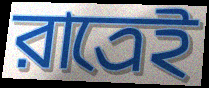
রাত্রেই